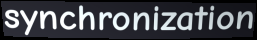
synchronization